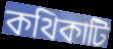
কথিকাটি